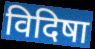
विदिषा